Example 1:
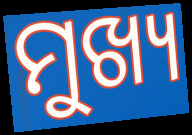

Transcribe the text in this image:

ମୁଖ୍ୟ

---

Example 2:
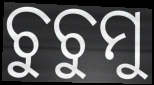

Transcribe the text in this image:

ଚୁଚୁମୁ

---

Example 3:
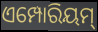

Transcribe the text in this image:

ଏମ୍ପୋରିୟମ୍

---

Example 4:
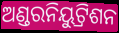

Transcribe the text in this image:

ଅଣ୍ଡରନିୟୁଟ୍ରିଶନ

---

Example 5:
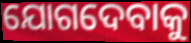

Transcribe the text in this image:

ଯୋଗଦେବାକୁ